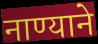
नाण्याने